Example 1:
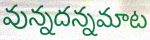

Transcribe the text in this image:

వున్నదన్నమాట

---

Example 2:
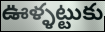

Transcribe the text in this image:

ఊళ్ళట్టుకు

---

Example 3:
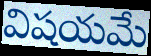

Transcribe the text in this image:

విషయమే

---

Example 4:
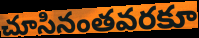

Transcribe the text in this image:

చూసినంతవరకూ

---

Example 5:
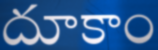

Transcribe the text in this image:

దూకాం